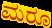
ಮರೂ